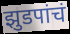
झुडपांचं